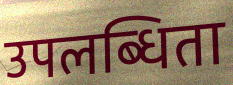
उपलब्धिता